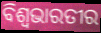
ବିଶ୍ୱଭାରତୀର